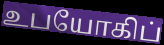
உபயோகிப்